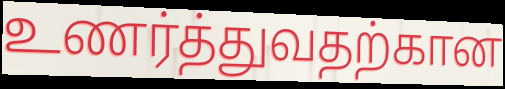
உணர்த்துவதற்கான